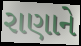
રાણાને